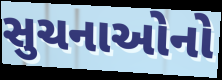
સુચનાઓનો